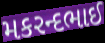
મકરન્દભાઈ